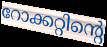
റോക്കറ്റിന്റെ